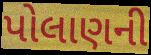
પોલાણની